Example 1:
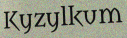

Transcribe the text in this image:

Kyzylkum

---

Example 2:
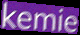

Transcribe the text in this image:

kemie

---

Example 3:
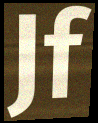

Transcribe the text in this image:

Jf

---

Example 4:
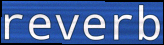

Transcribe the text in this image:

reverb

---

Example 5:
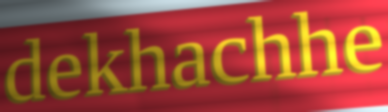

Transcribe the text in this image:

dekhachhe